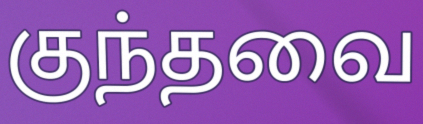
குந்தவை